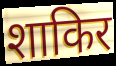
शाकिर